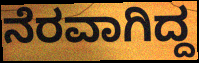
ನೆರವಾಗಿದ್ದ